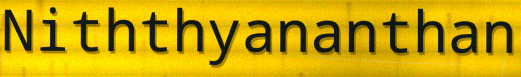
Niththyananthan